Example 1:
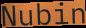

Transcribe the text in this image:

Nubin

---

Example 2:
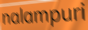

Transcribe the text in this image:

nalampuri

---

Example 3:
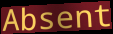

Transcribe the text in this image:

Absent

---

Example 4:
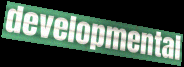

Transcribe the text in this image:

developmental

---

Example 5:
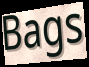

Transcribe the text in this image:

Bags